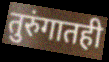
तुरुंगातही